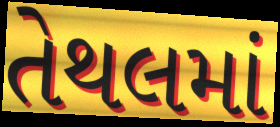
તેથલમાં